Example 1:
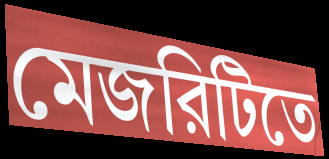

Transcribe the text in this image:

মেজরিটিতে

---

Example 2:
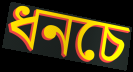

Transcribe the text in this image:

ধনচে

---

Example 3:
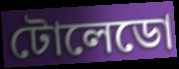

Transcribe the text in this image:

টোলেডো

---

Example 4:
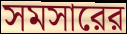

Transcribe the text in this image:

সমসারের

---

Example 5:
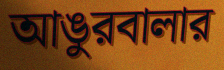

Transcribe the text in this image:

আঙুরবালার